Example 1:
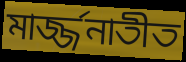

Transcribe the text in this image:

মার্জ্জনাতীত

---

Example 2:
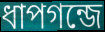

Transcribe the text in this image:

ধাপগন্জে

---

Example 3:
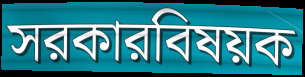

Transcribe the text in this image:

সরকারবিষয়ক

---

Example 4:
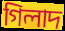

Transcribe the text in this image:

গিলাদ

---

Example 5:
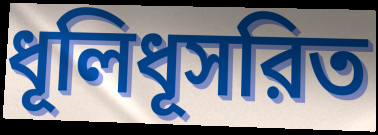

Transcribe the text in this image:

ধূলিধূসরিত